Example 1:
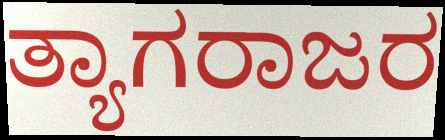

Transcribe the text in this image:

ತ್ಯಾಗರಾಜರ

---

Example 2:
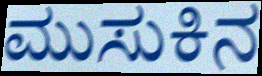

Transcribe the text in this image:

ಮುಸುಕಿನ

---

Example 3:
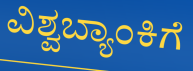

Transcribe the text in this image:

ವಿಶ್ವಬ್ಯಾಂಕಿಗೆ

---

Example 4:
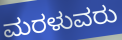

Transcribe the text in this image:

ಮರಳುವರು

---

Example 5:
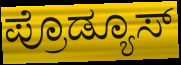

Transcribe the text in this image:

ಪ್ರೊಡ್ಯೂಸ್